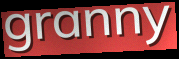
granny